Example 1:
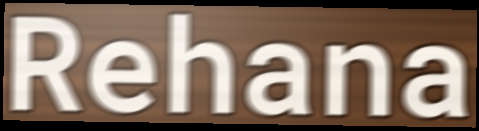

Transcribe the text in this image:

Rehana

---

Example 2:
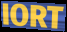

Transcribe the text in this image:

IORT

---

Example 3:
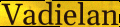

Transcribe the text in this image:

Vadielan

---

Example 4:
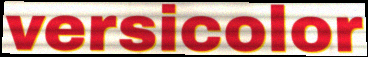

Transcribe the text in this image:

versicolor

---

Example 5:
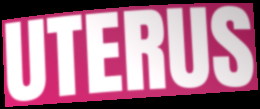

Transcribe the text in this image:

UTERUS